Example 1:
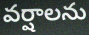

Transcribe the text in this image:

వర్షాలను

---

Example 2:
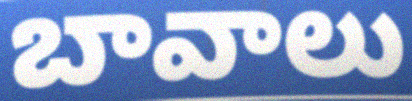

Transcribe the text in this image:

బావాలు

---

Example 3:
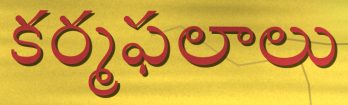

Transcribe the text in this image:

కర్మఫలాలు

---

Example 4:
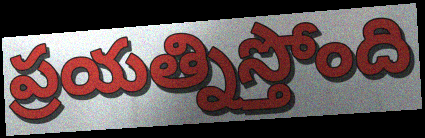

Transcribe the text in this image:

ప్రయత్నిస్తోంది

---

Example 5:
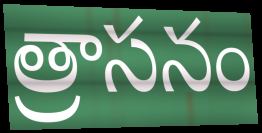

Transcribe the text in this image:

త్రాసనం